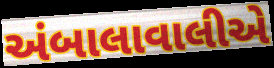
અંબાલાવાલીએ